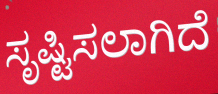
ಸೃಷ್ಟಿಸಲಾಗಿದೆ